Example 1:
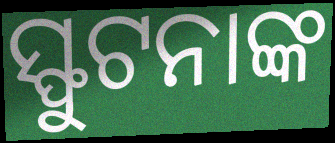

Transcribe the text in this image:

ସ୍ଫୁଟନାଙ୍କ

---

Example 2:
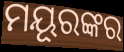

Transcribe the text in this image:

ମୟୂରଙ୍କର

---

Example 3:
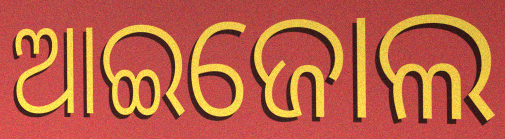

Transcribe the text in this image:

ଆଇଜୋଲ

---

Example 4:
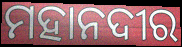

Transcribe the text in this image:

ମହାନଦୀର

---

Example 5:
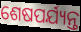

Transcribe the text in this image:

ଶେଷପର୍ଯ୍ୟନ୍ତ